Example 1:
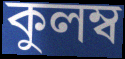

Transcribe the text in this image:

কুলম্ব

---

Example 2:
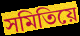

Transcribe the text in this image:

সমিতিয়ে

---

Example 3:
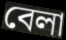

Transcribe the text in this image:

বেলা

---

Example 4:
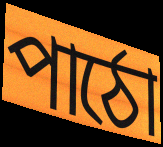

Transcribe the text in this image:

পাঠো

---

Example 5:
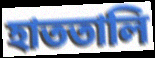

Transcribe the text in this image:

হাততালি